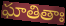
ఘాతితాః